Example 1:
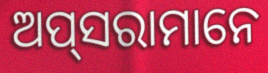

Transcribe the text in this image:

ଅପ୍‍ସରାମାନେ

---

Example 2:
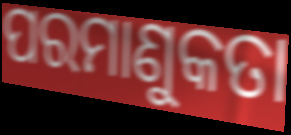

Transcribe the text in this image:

ପରମାଣୁକତା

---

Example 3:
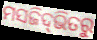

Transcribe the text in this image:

ମସଜିଦ୍‌ଭିତରୁ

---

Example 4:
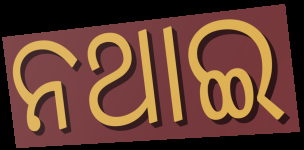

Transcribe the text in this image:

ନଥାଇ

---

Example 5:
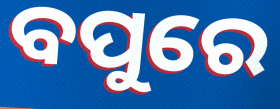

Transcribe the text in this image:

ବପୁରେ